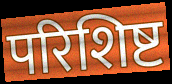
परिशिष्ट